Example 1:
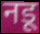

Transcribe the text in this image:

नडू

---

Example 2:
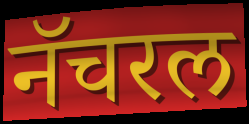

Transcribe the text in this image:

नॅचरल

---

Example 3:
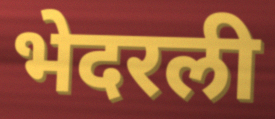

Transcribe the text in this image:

भेदरली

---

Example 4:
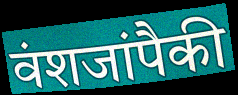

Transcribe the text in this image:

वंशजांपैकी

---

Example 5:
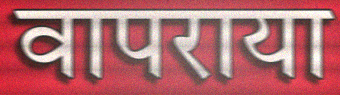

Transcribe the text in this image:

वापराया